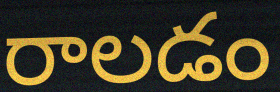
రాలడం